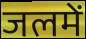
जलमें